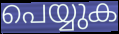
പെയ്യുക